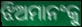
ଝିଅମାନଂକୁ